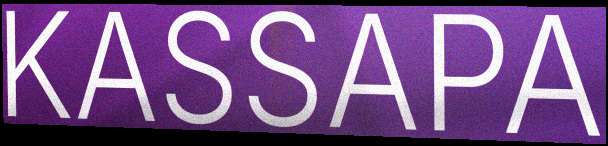
KASSAPA